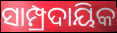
ସାମ୍ପ୍ରଦାୟିକ